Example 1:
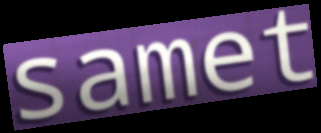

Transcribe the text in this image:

samet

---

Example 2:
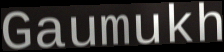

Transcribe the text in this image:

Gaumukh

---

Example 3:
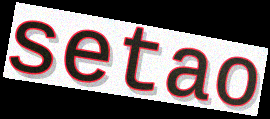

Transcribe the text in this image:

setao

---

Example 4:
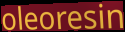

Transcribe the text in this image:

oleoresin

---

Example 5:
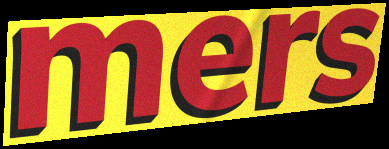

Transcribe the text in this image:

mers